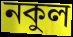
নকুল